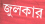
জুলকার